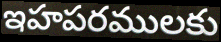
ఇహపరములకు